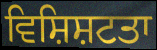
ਵਿਸ਼ਿਸ਼ਟਤਾ